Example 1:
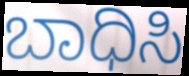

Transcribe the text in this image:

ಬಾಧಿಸಿ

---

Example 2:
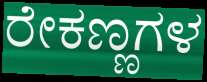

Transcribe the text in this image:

ರೇಕಣ್ಣಗಳ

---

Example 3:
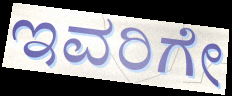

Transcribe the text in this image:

ಇವರಿಗೇ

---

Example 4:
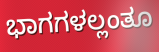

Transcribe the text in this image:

ಭಾಗಗಳಲ್ಲಂತೂ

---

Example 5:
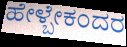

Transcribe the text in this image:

ಹೇಳ್ಬೇಕಂದರ